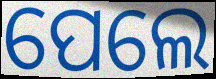
ପେଲେ